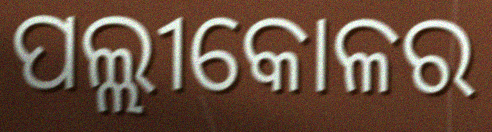
ପଲ୍ଲୀକୋଳର